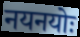
नयनयोः